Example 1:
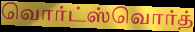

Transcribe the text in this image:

வொர்ட்ஸ்வொர்த்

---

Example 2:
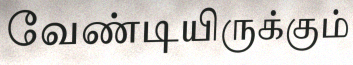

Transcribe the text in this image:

வேண்டியிருக்கும்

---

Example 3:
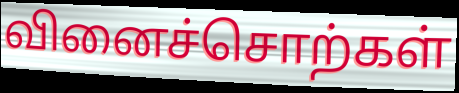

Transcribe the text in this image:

வினைச்சொற்கள்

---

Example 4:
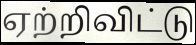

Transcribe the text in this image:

ஏற்றிவிட்டு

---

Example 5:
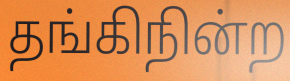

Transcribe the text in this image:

தங்கிநின்ற